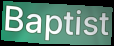
Baptist